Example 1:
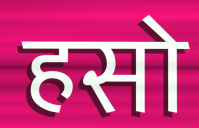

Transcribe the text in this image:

हसो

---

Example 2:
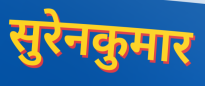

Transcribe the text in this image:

सुरेनकुमार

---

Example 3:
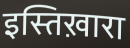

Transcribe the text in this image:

इस्तिख़ारा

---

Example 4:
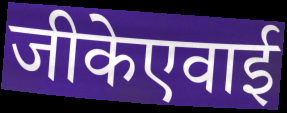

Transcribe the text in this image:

जीकेएवाई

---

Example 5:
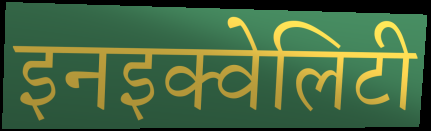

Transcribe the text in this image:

इनइक्वेलिटी